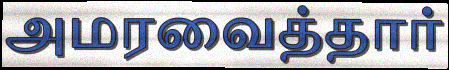
அமரவைத்தார்